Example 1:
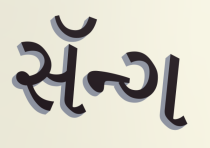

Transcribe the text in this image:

સૅન્ગ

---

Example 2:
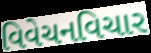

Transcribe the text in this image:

વિવેચનવિચાર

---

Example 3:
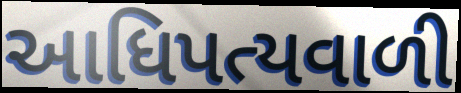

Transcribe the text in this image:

આધિપત્યવાળી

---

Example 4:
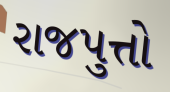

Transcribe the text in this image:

રાજપુત્તો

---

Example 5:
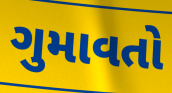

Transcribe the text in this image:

ગુમાવતો